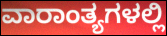
ವಾರಾಂತ್ಯಗಳಲ್ಲಿ